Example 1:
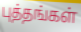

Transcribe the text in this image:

புத்தங்கள்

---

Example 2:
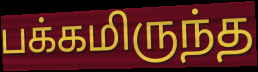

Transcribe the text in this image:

பக்கமிருந்த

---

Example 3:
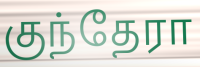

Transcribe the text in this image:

குந்தேரா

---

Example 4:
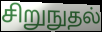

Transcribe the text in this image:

சிறுநுதல்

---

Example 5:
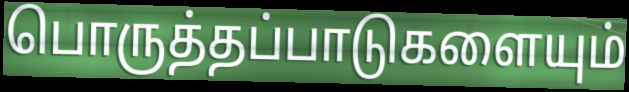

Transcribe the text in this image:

பொருத்தப்பாடுகளையும்